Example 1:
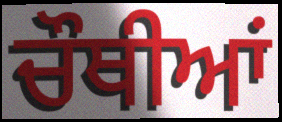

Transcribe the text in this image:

ਚੌਥੀਆਂ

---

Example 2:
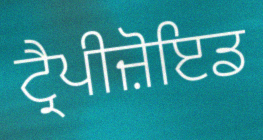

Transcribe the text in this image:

ਟ੍ਰੈਪੀਜ਼ੋਇਡ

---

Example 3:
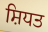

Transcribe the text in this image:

ਸ਼ਿਧਤ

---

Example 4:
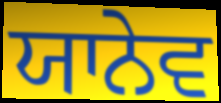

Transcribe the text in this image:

ਯਾਨੇਵ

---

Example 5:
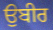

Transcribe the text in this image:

ਉਬੀਰ